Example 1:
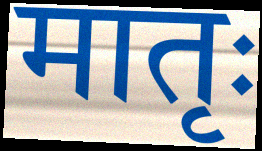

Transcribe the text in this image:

मातृः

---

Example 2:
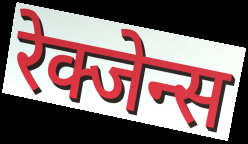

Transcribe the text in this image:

रेक्जेन्स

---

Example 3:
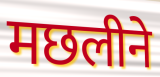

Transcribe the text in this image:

मछलीने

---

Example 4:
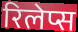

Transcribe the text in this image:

रिलेप्स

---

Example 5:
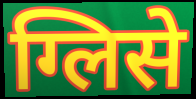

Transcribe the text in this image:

ग्लिसे